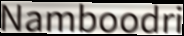
Namboodri